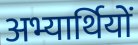
अभ्यार्थियों